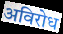
अविरोध